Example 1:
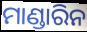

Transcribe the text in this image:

ମାଣ୍ଡାରିନ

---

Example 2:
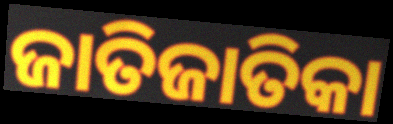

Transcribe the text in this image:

ଜାତିଜାତିକା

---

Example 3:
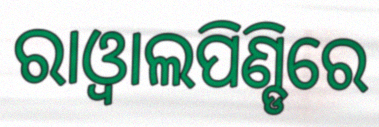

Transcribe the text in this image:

ରାଓ୍ଵାଲପିଣ୍ଡିରେ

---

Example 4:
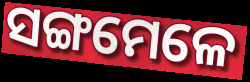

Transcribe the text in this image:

ସଙ୍ଗମେଳେ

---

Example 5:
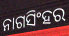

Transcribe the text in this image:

ନାଗସିଂହର